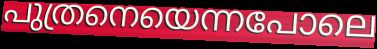
പുത്രനെയെന്നപോലെ